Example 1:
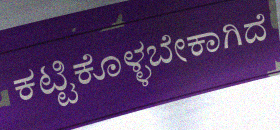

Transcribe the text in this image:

ಕಟ್ಟಿಕೊಳ್ಳಬೇಕಾಗಿದೆ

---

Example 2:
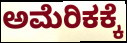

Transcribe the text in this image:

ಅಮೆರಿಕಕ್ಕೆ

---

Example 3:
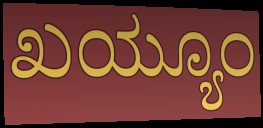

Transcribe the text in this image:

ಖಯ್ಯೂಂ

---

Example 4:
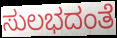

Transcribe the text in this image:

ಸುಲಭದಂತೆ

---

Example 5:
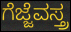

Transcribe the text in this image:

ಗೆಜ್ಜೆವಸ್ತ್ರ